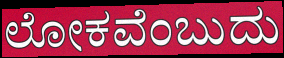
ಲೋಕವೆಂಬುದು